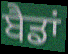
ਬੈਡਾਂ